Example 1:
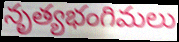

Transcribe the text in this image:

నృత్యభంగిమలు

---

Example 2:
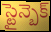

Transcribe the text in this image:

స్టైన్బెక్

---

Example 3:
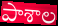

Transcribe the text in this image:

పాశాల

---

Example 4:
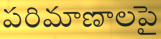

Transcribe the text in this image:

పరిమాణాలపై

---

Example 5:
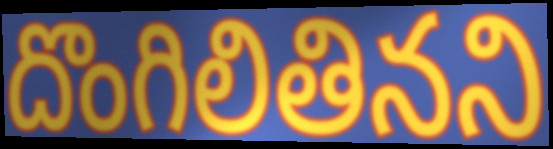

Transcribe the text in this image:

దొంగిలితినని